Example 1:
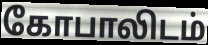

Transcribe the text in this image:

கோபாலிடம்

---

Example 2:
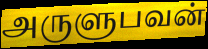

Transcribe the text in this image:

அருளுபவன்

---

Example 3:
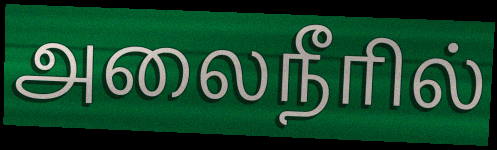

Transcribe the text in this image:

அலைநீரில்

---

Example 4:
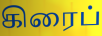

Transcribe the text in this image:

கிரைப்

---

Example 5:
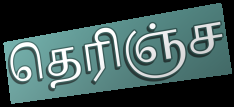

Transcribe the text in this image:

தெரிஞ்ச